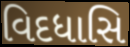
વિદધાસિ